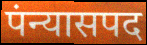
पंन्यासपद